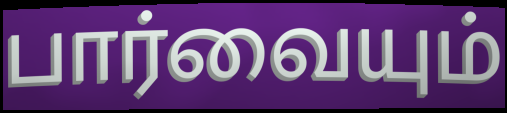
பார்வையும்